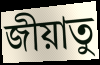
জীয়াতু